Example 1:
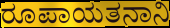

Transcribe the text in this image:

ರೂಪಾಯತನಾನಿ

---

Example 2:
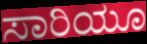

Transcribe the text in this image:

ಸಾರಿಯೂ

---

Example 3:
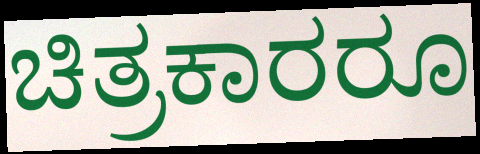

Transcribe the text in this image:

ಚಿತ್ರಕಾರರೂ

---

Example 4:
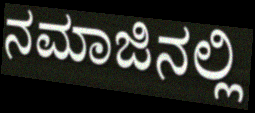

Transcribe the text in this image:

ನಮಾಜಿನಲ್ಲಿ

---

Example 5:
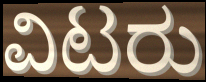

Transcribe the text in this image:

ವಿಟರು